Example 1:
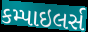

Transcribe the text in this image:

કમ્પાઇલર્સ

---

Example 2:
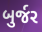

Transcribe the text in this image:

બુર્જર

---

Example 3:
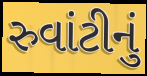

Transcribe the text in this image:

રુવાંટીનું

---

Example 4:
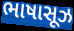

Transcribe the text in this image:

ભાષાસૂઝ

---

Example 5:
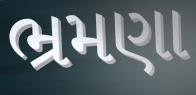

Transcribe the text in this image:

ભ્રમણા